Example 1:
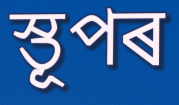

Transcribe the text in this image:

স্তূপৰ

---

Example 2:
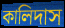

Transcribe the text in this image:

কালিদাস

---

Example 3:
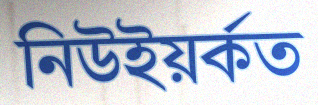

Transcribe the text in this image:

নিউইয়ৰ্কত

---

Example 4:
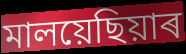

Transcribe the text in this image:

মালয়েছিয়াৰ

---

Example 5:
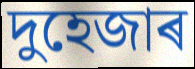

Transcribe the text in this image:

দুহেজাৰ